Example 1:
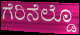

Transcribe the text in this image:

ಗೆರಿನೆಲ್ಡೊ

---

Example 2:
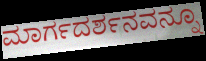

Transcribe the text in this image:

ಮಾರ್ಗದರ್ಶನವನ್ನೂ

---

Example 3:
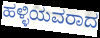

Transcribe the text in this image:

ಹಳ್ಳಿಯವರಾದ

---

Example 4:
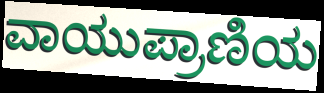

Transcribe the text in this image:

ವಾಯುಪ್ರಾಣಿಯ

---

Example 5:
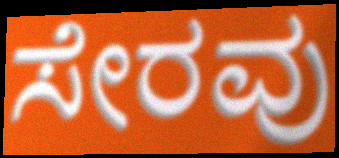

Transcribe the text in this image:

ಸೇರವು